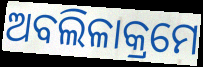
ଅବଲିଳାକ୍ରମେ